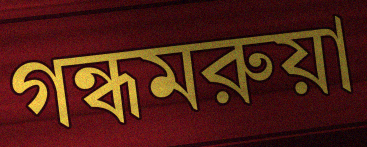
গন্ধমরুয়া